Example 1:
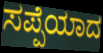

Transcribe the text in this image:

ಸಪ್ಪೆಯಾದ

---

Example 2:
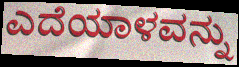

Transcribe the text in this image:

ಎದೆಯಾಳವನ್ನು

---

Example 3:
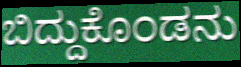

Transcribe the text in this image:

ಬಿದ್ದುಕೊಂಡನು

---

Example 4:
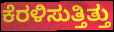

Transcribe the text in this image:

ಕೆರಳಿಸುತ್ತಿತ್ತು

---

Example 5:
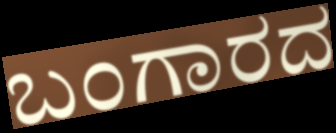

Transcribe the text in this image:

ಬಂಗಾರದ